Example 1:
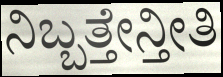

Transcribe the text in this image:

ನಿಬ್ಬತ್ತೇನ್ತೀತಿ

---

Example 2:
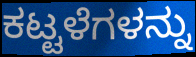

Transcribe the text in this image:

ಕಟ್ಟಳೆಗಳನ್ನು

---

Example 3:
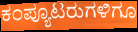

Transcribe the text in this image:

ಕಂಪ್ಯೂಟರುಗಳಿಗೂ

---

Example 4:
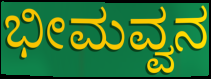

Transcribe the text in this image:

ಭೀಮವ್ವನ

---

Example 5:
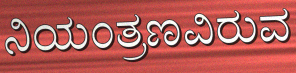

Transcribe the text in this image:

ನಿಯಂತ್ರಣವಿರುವ